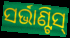
ସର୍ଭାଣ୍ଟିସ୍